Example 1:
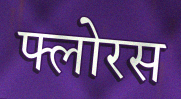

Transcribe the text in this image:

फ्लोरस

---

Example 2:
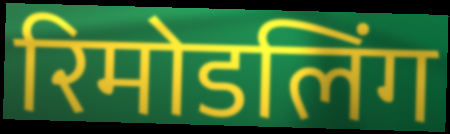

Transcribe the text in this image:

रिमोडलिंग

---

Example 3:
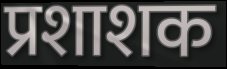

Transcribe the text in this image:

प्रशाशक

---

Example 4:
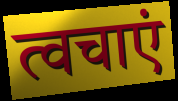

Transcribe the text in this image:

त्वचाएं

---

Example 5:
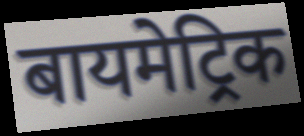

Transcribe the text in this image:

बायमेट्रिक